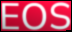
EOS